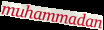
muhammadan